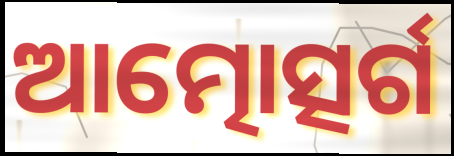
ଆତ୍ମୋତ୍ସର୍ଗ